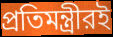
প্রতিমন্ত্রীরই